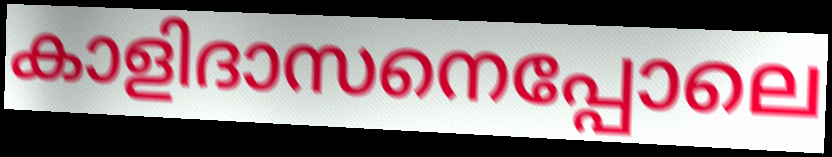
കാളിദാസനെപ്പോലെ